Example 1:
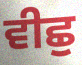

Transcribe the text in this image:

ਵੀਛੁ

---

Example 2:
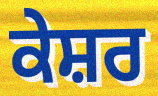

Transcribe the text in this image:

ਕੇਸ਼ਰ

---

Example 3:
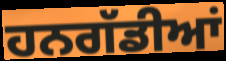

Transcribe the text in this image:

ਹਨਗੱਡੀਆਂ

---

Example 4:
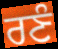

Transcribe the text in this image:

ਰਣੰ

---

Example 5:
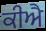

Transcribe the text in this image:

ਕੀਐ